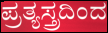
ಪ್ರತ್ಯಸ್ತ್ರದಿಂದ